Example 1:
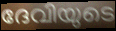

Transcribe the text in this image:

ദേവിയുടെ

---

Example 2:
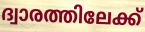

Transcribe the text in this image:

ദ്വാരത്തിലേക്ക്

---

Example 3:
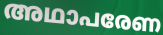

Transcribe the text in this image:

അഥാപരേണ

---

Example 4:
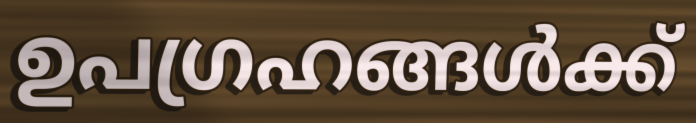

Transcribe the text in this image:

ഉപഗ്രഹങ്ങൾക്ക്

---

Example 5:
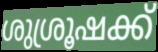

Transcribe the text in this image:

ശുശ്രൂഷക്ക്